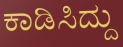
ಕಾಡಿಸಿದ್ದು